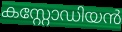
കസ്റ്റോഡിയൻ